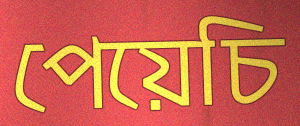
পেয়েচি